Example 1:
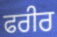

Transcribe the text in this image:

ਫਰੀਰ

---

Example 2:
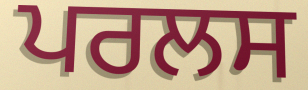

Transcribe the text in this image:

ਪਰਲਸ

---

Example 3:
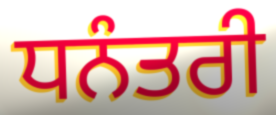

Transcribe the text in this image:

ਧਨੰਤਰੀ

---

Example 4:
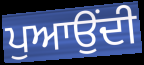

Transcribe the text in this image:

ਪੁਆਉਂਦੀ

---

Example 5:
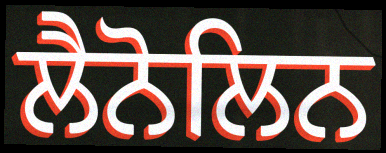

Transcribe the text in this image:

ਲੈਨੋਲਿਨ